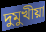
দুমুখীয়া